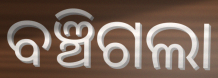
ବଞ୍ଚିଗଲା